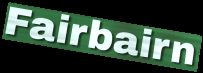
Fairbairn